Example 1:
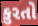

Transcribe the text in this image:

કુરતો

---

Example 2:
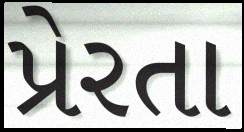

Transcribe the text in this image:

પ્રેરતા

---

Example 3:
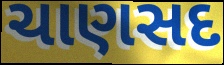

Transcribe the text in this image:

ચાણસદ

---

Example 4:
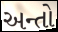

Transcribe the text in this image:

અન્તો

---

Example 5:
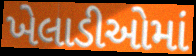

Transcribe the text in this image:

ખેલાડીઓમાં